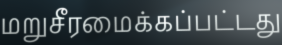
மறுசீரமைக்கப்பட்டது